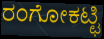
ರಂಗೋಕಟ್ಟಿ